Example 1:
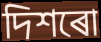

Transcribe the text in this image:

দিশৰো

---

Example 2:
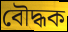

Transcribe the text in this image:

বৌদ্ধক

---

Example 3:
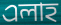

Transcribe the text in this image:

এলাহ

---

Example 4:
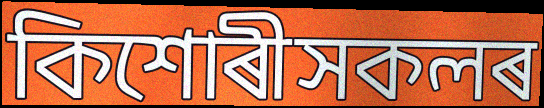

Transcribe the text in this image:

কিশোৰীসকলৰ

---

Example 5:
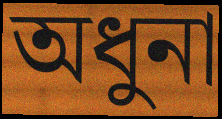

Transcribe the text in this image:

অধুনা